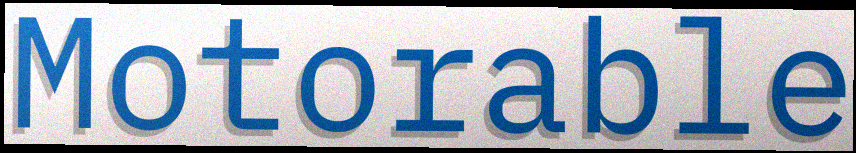
Motorable